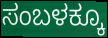
ಸಂಬಳಕ್ಕೂ